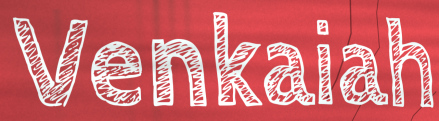
Venkaiah